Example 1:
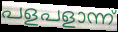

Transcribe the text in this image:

പളപളാന്ന്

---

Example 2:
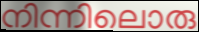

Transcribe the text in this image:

നിന്നിലൊരു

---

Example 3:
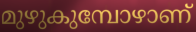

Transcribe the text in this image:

മുഴുകുമ്പോഴാണ്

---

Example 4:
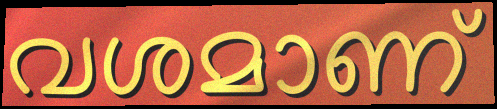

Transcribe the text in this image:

വശമാണ്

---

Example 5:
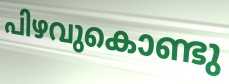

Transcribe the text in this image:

പിഴവുകൊണ്ടു